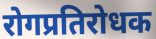
रोगप्रतिरोधक